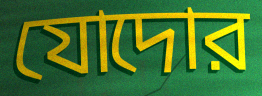
যোদোর